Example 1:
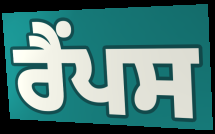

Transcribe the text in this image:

ਰੈਂਪਸ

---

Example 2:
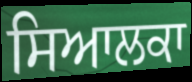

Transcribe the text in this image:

ਸਿਆਲਕਾ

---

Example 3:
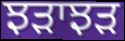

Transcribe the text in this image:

ਝੜਾਝੜ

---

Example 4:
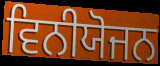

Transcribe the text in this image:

ਵਿਨੀਯੋਜਨ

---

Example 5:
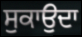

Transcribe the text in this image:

ਸੁਕਾਉਦਾ